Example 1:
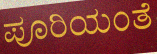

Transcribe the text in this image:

ಪೂರಿಯಂತೆ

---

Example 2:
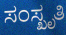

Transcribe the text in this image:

ಸಂಸ್ಖೃತಿ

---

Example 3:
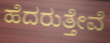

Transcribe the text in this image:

ಹೆದರುತ್ತೇವೆ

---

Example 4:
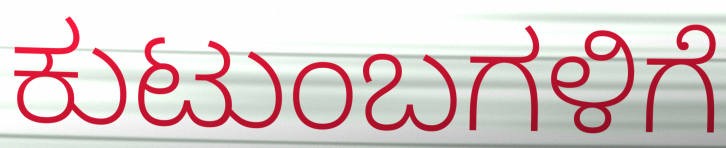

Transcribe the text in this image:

ಕುಟುಂಬಗಳಿಗೆ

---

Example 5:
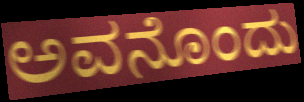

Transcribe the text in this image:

ಅವನೊಂದು